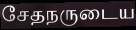
சேதநருடைய